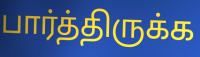
பார்த்திருக்க